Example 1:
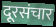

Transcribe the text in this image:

दूरसंचार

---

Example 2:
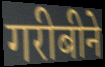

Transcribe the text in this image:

गरीबीने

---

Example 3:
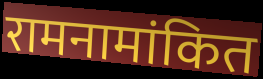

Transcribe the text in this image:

रामनामांकित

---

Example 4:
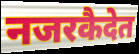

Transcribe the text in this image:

नजरकैदेत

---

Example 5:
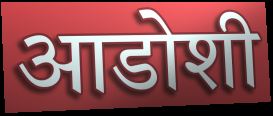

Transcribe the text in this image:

आडोशी